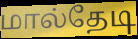
மால்தேடி